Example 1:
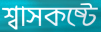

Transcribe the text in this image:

শ্বাসকষ্টে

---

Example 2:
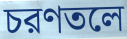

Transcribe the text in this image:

চরণতলে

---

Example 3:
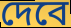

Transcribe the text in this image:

দেবে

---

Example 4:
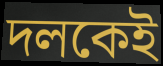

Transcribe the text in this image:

দলকেই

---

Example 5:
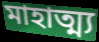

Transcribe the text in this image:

মাহাত্ম্য